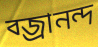
ব্জ্রানন্দ